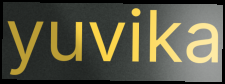
yuvika